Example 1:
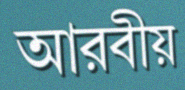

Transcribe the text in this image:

আরবীয়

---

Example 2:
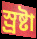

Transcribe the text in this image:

স্র্রষ্টা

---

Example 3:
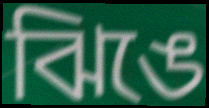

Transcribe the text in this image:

ঝিঙে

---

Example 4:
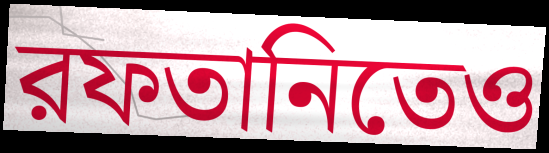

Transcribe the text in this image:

রফতানিতেও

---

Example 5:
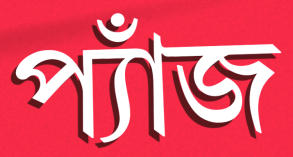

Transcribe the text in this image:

প্যাঁজ